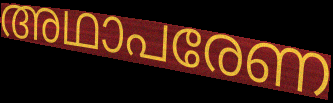
അഥാപരേണ